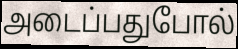
அடைப்பதுபோல்